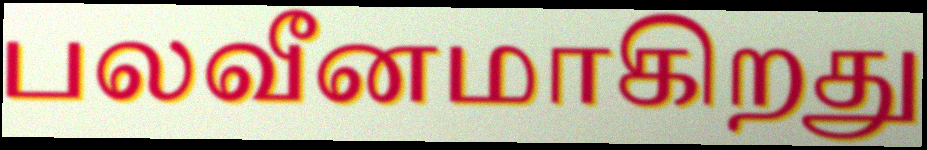
பலவீனமாகிறது